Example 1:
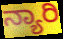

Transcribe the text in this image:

ನ್ಯಾರಿ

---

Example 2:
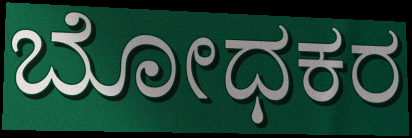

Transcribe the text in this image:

ಬೋಧಕರ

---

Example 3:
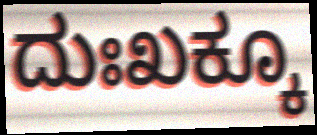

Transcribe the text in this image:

ದುಃಖಕ್ಕೂ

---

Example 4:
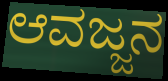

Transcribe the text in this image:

ಆವಜ್ಜನ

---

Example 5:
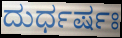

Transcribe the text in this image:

ದುರ್ಧರ್ಷಃ